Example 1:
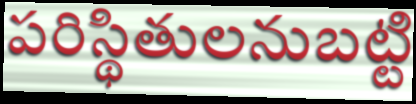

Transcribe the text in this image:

పరిస్థితులనుబట్టి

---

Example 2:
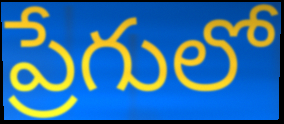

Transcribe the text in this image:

ప్రేగులో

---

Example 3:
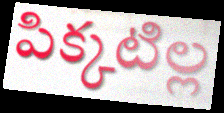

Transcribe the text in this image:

పిక్కటిల్ల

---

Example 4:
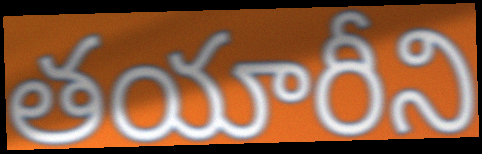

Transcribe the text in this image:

తయారీని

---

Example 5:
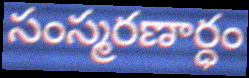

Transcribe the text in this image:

సంస్మరణార్ధం